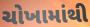
ચોખામાંથી